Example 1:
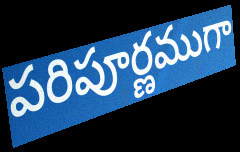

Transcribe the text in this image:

పరిపూర్ణముగా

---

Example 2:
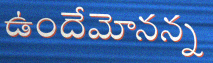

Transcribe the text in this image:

ఉందేమోనన్న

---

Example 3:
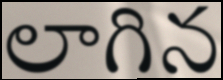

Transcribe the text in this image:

లాగిన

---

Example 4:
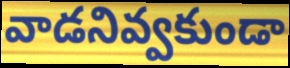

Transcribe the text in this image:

వాడనివ్వకుండా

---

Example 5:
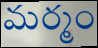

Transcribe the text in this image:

మర్మం